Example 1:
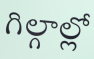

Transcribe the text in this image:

గిల్గాల్లో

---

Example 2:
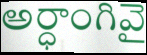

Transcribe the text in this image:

అర్ధాంగివై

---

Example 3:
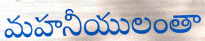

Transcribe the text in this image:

మహనీయులంతా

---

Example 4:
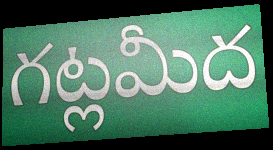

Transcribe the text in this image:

గట్లమీద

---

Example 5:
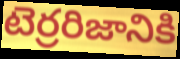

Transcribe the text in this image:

టెర్రరిజానికి